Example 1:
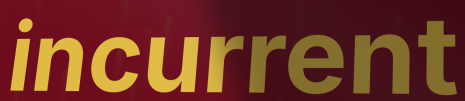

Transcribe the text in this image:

incurrent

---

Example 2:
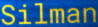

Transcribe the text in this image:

Silman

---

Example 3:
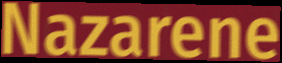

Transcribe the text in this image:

Nazarene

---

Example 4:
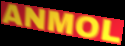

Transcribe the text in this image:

ANMOL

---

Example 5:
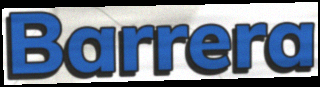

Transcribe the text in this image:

Barrera